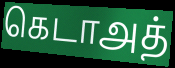
கெடாஅத்